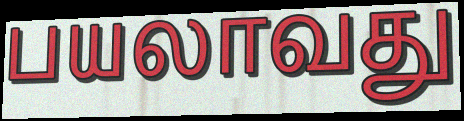
பயலாவது